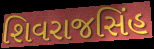
શિવરાજસિંહ